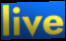
live